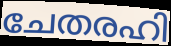
ചേതരഹി